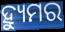
ହ୍ୟୁମର